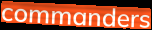
commanders